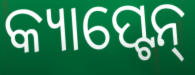
କ୍ୟାପ୍ଟେନ୍